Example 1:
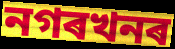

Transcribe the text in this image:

নগৰখনৰ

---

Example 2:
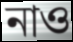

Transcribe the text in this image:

নাও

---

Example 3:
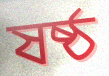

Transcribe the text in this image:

ষষ্ঠ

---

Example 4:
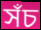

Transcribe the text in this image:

সঁচ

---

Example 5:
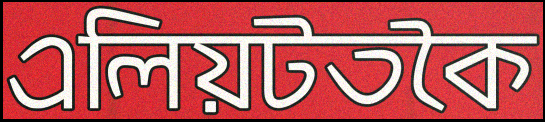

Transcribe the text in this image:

এলিয়টতকৈ